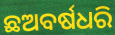
ଛଅବର୍ଷଧରି